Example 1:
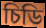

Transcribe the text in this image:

চিডি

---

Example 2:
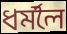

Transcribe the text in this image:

ধৰ্মলৈ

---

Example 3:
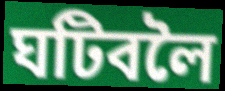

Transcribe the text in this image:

ঘটিবলৈ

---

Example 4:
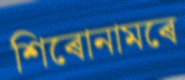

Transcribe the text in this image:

শিৰোনামৰে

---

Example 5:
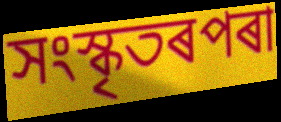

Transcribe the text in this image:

সংস্কৃতৰপৰা